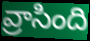
వ్రాసింది